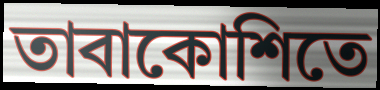
তাবাকোশিতে